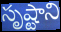
సృష్టాని